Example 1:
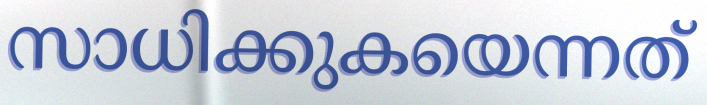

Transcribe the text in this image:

സാധിക്കുകയെന്നത്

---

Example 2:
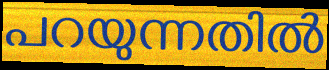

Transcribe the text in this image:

പറയുന്നതിൽ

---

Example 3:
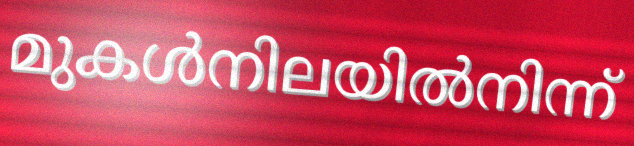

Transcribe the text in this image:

മുകൾനിലയിൽനിന്ന്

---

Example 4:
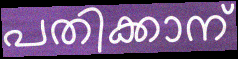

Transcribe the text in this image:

പതിക്കാന്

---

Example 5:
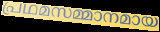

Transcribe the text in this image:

പ്രഥമസമ്മാനമായ